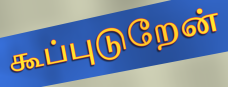
கூப்புடுறேன்